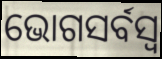
ଭୋଗସର୍ବସ୍ୱ